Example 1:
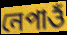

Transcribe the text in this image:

নেপাওঁ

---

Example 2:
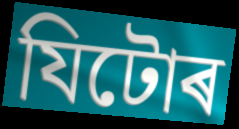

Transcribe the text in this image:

যিটোৰ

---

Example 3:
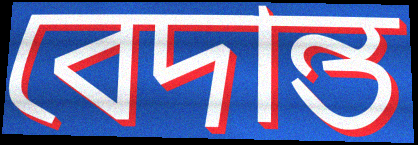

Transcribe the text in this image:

বেদান্ত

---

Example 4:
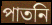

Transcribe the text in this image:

পাতনি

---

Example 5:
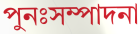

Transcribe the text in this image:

পুনঃসম্পাদনা